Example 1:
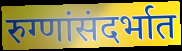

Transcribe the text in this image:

रुग्णांसंदर्भात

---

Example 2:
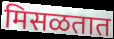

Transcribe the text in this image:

मिसळतात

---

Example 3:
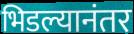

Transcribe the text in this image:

भिडल्यानंतर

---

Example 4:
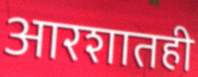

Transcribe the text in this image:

आरशातही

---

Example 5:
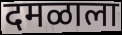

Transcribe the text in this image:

दमळाला